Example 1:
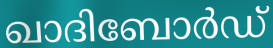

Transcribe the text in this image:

ഖാദിബോർഡ്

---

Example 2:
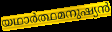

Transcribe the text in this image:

യഥാർത്ഥമനുഷ്യൻ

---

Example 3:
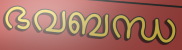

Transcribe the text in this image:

ഭവബന്ധ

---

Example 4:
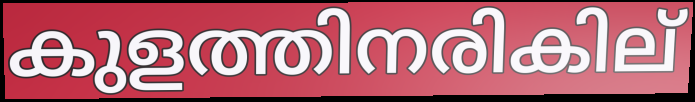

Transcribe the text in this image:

കുളത്തിനരികില്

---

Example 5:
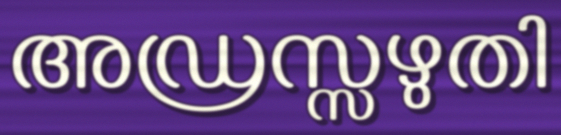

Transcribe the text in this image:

അഡ്രസ്സഴുതി